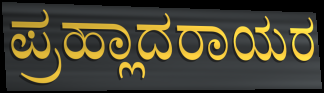
ಪ್ರಹ್ಲಾದರಾಯರ